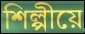
শিল্পীয়ে